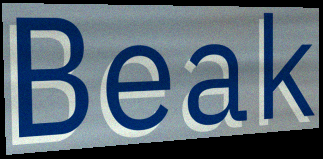
Beak